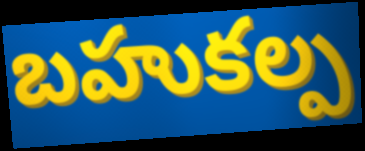
బహుకల్ప